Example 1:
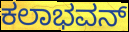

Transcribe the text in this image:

ಕಲಾಭವನ್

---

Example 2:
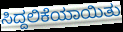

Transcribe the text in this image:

ಸಿದ್ದಲಿಕೆಯಾಯಿತು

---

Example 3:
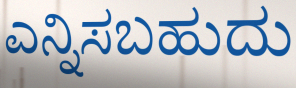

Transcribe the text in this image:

ಎನ್ನಿಸಬಹುದು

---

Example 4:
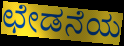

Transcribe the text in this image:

ಛೇಡನೆಯ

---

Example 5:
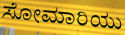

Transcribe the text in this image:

ಸೋಮಾರಿಯು